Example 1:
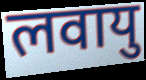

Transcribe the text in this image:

लवायु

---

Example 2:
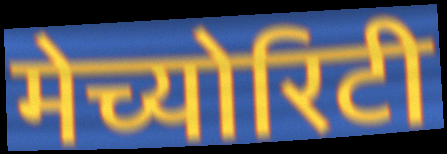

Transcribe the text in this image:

मेच्योरिटी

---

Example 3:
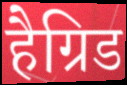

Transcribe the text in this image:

हैग्रिड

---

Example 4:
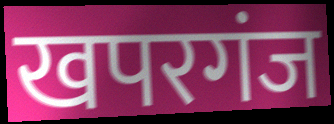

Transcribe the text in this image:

खपरगंज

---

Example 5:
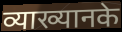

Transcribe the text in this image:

व्याख्यानके